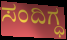
ಸಂದಿಗ್ಧ